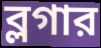
ব্লগার